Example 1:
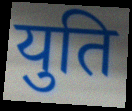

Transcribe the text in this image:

युति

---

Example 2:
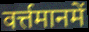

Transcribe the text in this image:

वर्त्तमानमें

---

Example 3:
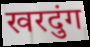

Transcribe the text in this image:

खरदुंग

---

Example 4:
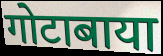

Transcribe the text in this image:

गोटाबाया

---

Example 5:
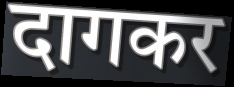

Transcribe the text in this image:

दागकर